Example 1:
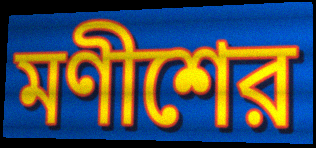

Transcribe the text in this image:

মণীশের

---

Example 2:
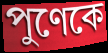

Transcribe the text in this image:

পুণেকে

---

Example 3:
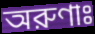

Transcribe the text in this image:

অরুণাঃ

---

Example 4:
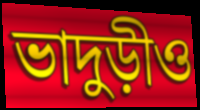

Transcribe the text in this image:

ভাদুড়ীও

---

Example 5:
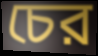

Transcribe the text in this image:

চের